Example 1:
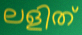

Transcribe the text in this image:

ലളിത്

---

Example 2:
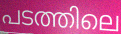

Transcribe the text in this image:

പടത്തിലെ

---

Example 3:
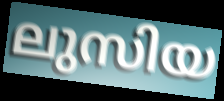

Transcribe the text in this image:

ലുസിയ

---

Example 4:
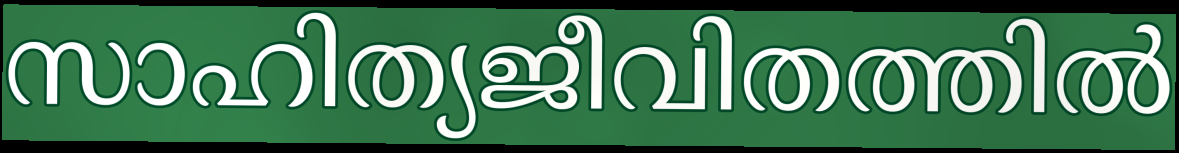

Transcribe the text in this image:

സാഹിത്യജീവിതത്തിൽ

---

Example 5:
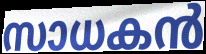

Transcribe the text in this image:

സാധകൻ